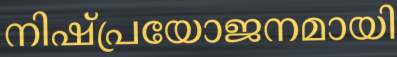
നിഷ്പ്രയോജനമായി